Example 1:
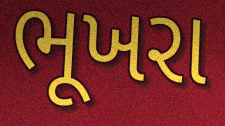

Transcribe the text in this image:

ભૂખરા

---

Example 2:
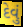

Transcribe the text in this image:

દેવું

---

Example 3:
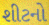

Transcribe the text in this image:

શીટનો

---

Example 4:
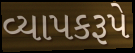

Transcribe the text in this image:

વ્યાપકરૂપે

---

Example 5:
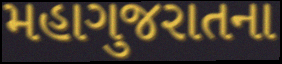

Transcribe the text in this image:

મહાગુજરાતના